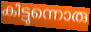
കിട്ടുന്നൊരു